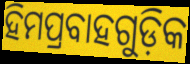
ହିମପ୍ରବାହଗୁଡ଼ିକ